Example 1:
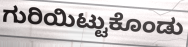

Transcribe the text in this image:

ಗುರಿಯಿಟ್ಟುಕೊಂಡು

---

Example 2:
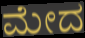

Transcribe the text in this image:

ಮೇದ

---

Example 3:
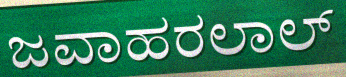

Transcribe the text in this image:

ಜವಾಹರಲಾಲ್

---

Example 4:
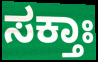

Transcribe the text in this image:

ಸಕ್ತಾಃ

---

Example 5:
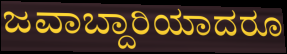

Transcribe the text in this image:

ಜವಾಬ್ದಾರಿಯಾದರೂ